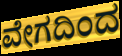
ವೇಗದಿಂದ